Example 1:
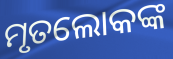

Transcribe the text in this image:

ମୃତଲୋକଙ୍କ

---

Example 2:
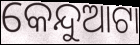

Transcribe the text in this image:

କେନ୍ଦୁଆଟା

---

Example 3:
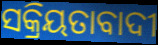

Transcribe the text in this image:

ସକ୍ରିୟତାବାଦୀ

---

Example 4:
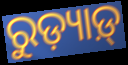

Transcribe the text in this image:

ରୁଡ଼୍ୟାଡ଼୍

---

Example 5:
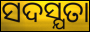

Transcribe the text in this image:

ସଦସ୍ଯତା